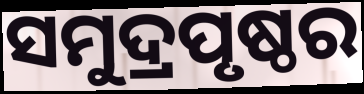
ସମୁଦ୍ରପୃଷ୍ଠର